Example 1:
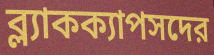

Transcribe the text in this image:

ব্ল্যাকক্যাপসদের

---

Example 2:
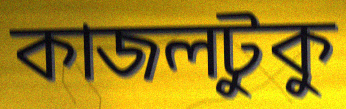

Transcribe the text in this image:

কাজলটুকু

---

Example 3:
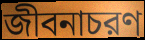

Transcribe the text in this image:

জীবনাচরণ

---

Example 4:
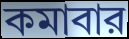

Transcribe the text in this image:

কমাবার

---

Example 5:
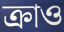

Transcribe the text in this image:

ক্রাও